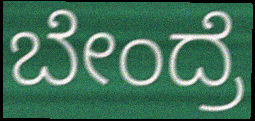
ಬೇಂದ್ರೆ